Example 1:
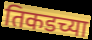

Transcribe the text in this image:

तिकडच्या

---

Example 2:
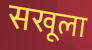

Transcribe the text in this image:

सखूला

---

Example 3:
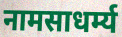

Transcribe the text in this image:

नामसाधर्म्य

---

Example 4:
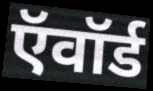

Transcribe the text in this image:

ऍवॉर्ड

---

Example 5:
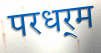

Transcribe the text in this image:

परधर्म